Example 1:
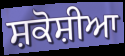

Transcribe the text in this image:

ਸ਼ਕੋਸ਼ੀਆ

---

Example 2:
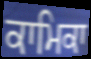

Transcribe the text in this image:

ਕਾਮਿਕਾ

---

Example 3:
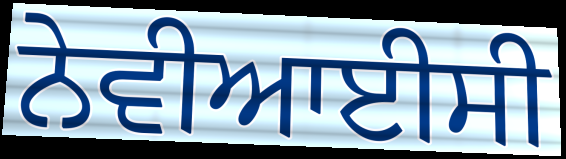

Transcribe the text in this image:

ਨੇਵੀਆਈਸੀ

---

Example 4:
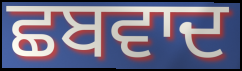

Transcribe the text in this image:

ਛਬਵਾਦ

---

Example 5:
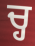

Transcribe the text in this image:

ਚ੍ਹ